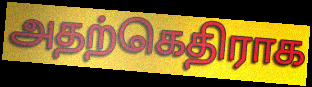
அதற்கெதிராக